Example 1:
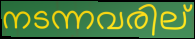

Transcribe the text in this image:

നടന്നവരില്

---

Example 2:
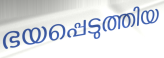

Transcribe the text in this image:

ഭയപ്പെടുത്തിയ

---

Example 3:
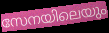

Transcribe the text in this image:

സേനയിലെയും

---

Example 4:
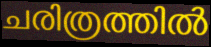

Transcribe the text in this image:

ചരിത്രത്തിൽ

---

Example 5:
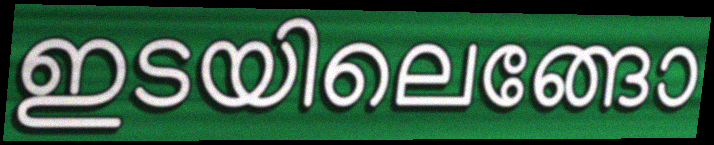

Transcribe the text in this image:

ഇടയിലെങ്ങോ